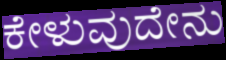
ಕೇಳುವುದೇನು